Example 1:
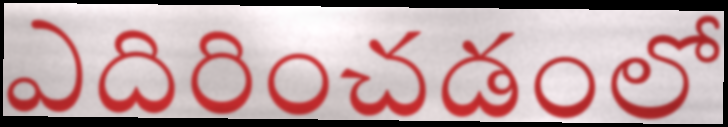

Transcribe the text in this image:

ఎదిరించడంలో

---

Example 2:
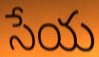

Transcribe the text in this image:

సేయ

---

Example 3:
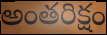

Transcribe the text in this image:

అంతరిక్షం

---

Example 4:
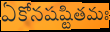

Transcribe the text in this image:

ఏకోనషష్టితమః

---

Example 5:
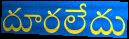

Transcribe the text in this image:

దూరలేదు